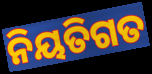
ନିୟତିଗତ